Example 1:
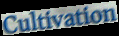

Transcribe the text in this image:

Cultivation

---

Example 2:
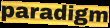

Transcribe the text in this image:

paradigm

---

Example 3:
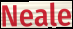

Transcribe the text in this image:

Neale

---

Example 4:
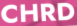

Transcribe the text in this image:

CHRD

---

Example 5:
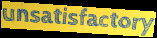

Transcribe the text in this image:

unsatisfactory